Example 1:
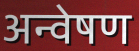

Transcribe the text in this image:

अन्वेषण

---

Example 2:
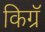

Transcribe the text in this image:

किग्रॅ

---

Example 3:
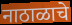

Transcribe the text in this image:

नाठाळाचे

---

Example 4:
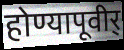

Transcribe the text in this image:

होण्यापूवीर्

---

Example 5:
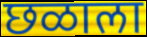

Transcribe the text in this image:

छळाला